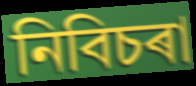
নিবিচৰা